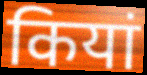
कियां